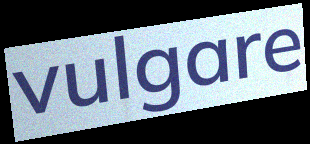
vulgare